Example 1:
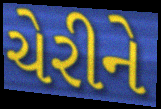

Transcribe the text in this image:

ચેરીને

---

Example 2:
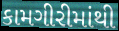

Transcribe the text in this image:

કામગીરીમાંથી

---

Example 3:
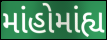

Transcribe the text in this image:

માંહોમાંહ્ય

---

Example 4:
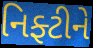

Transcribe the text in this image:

નિફ્ટીને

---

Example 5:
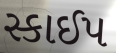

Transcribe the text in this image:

સ્કાઈપ